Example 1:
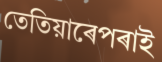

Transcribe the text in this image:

তেতিয়াৰেপৰাই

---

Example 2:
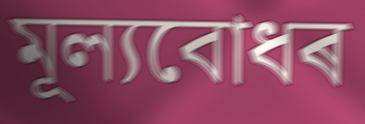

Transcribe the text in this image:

মূল্যবোধৰ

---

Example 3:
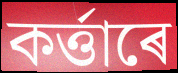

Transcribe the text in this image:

কৰ্ত্তাৰে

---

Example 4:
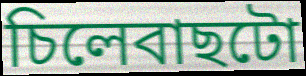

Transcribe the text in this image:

চিলেবাছটো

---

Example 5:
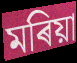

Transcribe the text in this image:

মৰিয়া